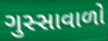
ગુસ્સાવાળો